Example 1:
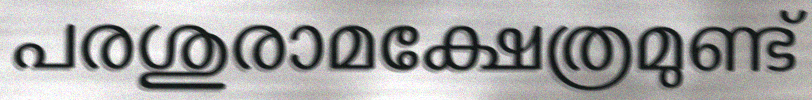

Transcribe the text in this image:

പരശുരാമക്ഷേത്രമുണ്ട്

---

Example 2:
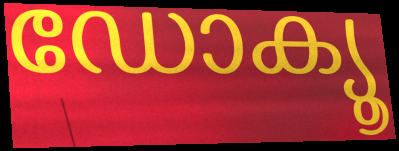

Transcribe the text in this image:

ഡോക്യൂ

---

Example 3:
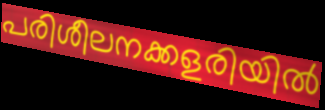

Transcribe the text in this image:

പരിശീലനക്കളരിയിൽ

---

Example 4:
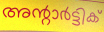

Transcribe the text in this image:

അന്റാർട്ടിക്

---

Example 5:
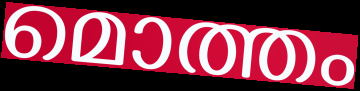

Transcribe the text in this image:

മൊത്തം